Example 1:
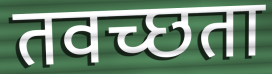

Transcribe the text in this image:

तवच्छता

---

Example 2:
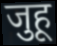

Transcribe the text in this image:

जुहू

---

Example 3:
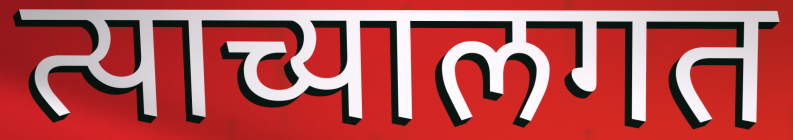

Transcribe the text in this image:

त्याच्यालगत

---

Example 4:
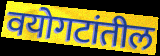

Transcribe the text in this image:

वयोगटांतील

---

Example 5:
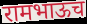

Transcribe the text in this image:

रामभाऊच